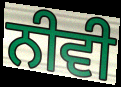
ਨੀਵੀ